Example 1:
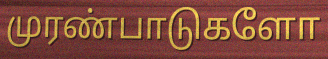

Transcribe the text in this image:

முரண்பாடுகளோ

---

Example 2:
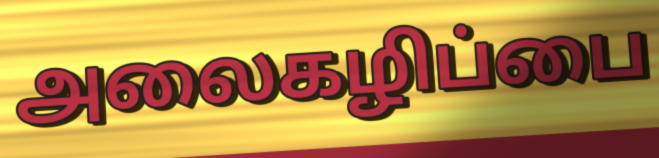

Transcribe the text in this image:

அலைகழிப்பை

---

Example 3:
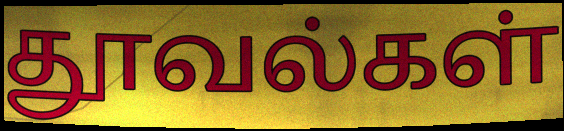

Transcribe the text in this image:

தூவல்கள்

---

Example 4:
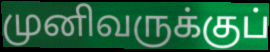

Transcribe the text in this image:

முனிவருக்குப்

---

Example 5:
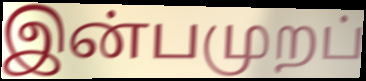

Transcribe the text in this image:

இன்பமுறப்